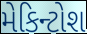
મેકિન્ટોશ